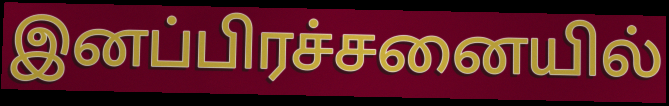
இனப்பிரச்சனையில்